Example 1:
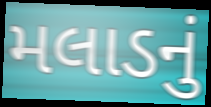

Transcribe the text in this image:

મલાડનું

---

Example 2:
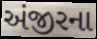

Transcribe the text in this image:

અંજીરના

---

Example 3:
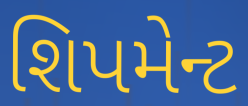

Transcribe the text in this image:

શિપમેન્ટ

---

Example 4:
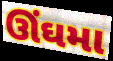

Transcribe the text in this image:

ઊંઘમા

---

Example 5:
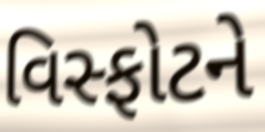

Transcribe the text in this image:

વિસ્ફોટને